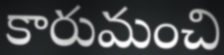
కారుమంచి